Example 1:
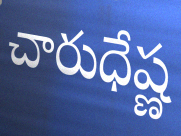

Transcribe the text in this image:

చారుధేష్ణ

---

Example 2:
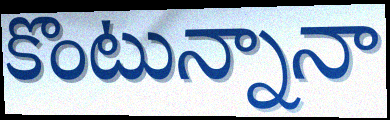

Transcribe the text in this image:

కొంటున్నానా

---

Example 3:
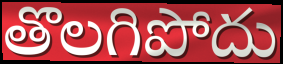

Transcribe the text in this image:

తొలగిపోదు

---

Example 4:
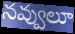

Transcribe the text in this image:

నవ్వులూ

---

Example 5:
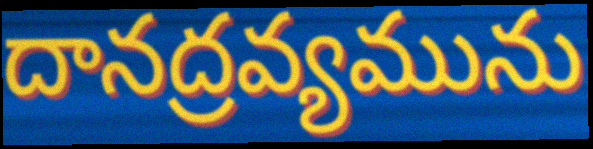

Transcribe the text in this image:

దానద్రవ్యమును